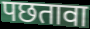
पछतावा